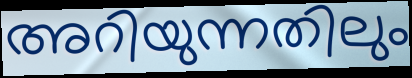
അറിയുന്നതിലും